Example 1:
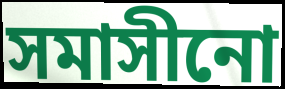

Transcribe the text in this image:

সমাসীনো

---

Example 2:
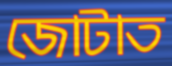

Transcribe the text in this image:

জোটাত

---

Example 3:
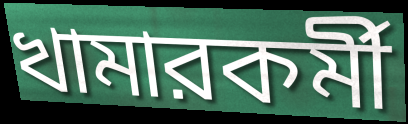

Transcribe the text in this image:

খামারকর্মী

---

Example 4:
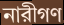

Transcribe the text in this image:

নারীগণ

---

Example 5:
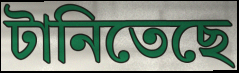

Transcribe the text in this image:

টানিতেছে